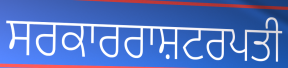
ਸਰਕਾਰਰਾਸ਼ਟਰਪਤੀ